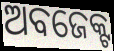
ଅବଜେକ୍ଟ